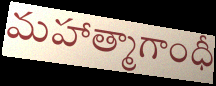
మహాత్మాగాంధీ